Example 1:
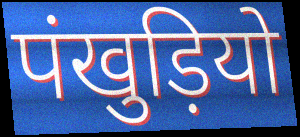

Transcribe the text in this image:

पंखुड़ियो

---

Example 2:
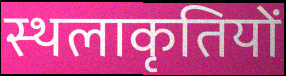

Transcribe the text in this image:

स्थलाकृतियों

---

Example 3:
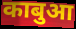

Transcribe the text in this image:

काबुआ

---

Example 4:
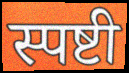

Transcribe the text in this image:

स्पष्टी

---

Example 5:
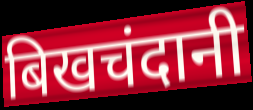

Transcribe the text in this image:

बिखचंदानी